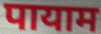
पायाम